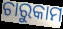
ଚାରୁକାମ